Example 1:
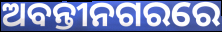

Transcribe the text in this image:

ଅବନ୍ତୀନଗରରେ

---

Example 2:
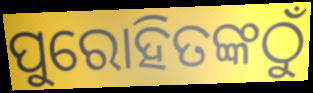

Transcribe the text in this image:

ପୁରୋହିତଙ୍କଠୁଁ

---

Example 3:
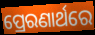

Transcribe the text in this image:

ପ୍ରେରଣାର୍ଥରେ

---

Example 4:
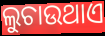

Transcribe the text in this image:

ଲୁଚାଉଥାଏ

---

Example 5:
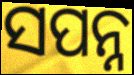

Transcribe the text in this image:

ସପନ୍ନ